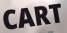
CART